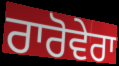
ਰਾਰੋਵੇਰਾ